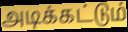
அடிக்கட்டும்